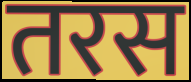
तरस